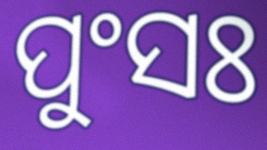
ପୁଂସଃ